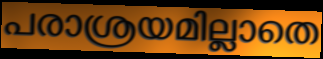
പരാശ്രയമില്ലാതെ